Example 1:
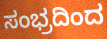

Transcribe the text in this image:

ಸಂಭ್ರದಿಂದ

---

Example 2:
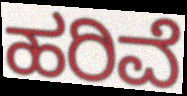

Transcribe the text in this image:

ಹರಿವೆ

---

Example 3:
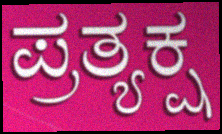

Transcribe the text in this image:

ಪ್ರತ್ಯಕ್ಷ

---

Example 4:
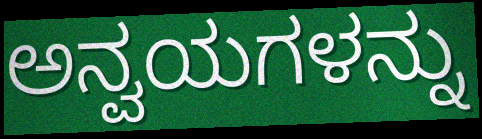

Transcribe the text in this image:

ಅನ್ವಯಗಳನ್ನು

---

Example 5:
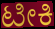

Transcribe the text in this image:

ಟೀಕಿ